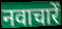
नवाचारें